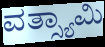
ವತ್ಸ್ಯಾಮಿ